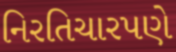
નિરતિચારપણે